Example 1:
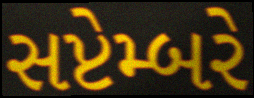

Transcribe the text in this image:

સપ્ટેમ્બરે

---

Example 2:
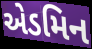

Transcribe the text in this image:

એડમિન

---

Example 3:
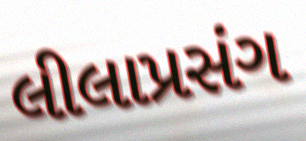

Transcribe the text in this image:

લીલાપ્રસંગ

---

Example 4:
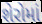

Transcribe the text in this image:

શેરોમાં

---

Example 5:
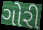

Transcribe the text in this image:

ગોરી